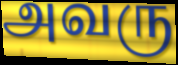
அவரு